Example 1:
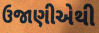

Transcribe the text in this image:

ઉજાણીએથી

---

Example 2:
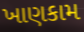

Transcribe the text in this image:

ખાણકામ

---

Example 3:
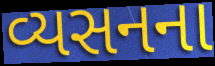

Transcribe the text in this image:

વ્યસનના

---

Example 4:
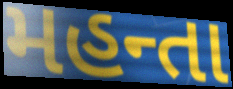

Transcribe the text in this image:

મહન્તા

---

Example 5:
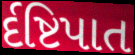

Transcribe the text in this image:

ર્દષ્ટિપાત